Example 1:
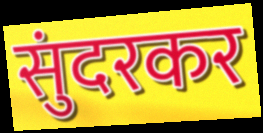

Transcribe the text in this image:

सुंदरकर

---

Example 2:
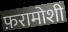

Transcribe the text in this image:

फ़रामोशी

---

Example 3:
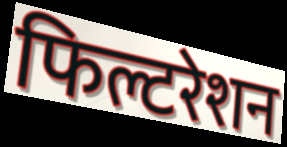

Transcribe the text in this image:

फिल्टरेशन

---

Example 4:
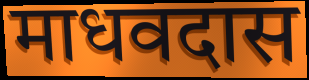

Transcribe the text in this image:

माधवदास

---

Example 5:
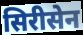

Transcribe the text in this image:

सिरीसेन